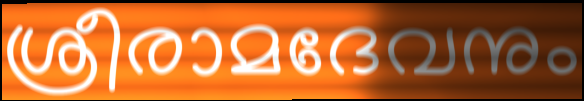
ശ്രീരാമദേവനും